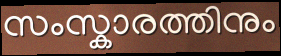
സംസ്കാരത്തിനും